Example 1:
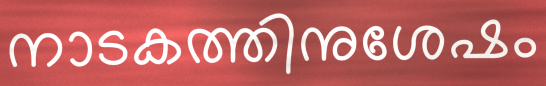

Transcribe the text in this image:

നാടകത്തിനുശേഷം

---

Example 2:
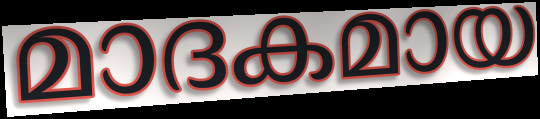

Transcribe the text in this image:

മാദകമായ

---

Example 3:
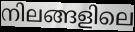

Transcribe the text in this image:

നിലങ്ങളിലെ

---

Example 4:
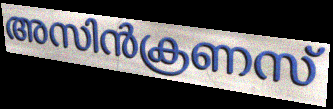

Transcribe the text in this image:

അസിൻക്രണസ്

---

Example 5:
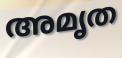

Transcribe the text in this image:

അമൃത